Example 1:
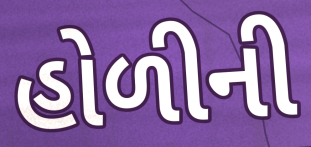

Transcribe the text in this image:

હોળીની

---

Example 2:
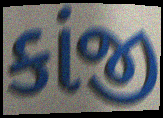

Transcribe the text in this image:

કાંજી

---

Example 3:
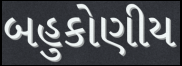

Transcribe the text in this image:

બહુકોણીય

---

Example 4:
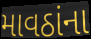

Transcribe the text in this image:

માવઠાંના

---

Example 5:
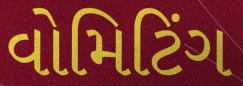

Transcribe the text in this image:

વોમિટિંગ